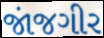
જાંજગીર